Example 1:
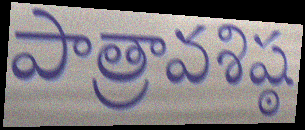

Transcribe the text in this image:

పాత్రావశిష్ఠ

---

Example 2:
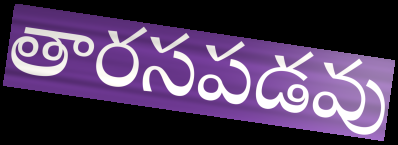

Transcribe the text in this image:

తారసపడవు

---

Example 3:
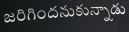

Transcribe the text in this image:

జరిగిందనుకున్నాడు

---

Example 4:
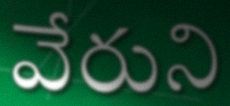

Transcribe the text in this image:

వేరుని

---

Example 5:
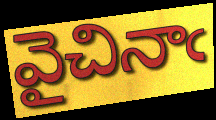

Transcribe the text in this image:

వైచినాఁ